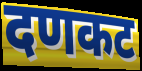
दणकट